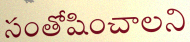
సంతోషించాలని